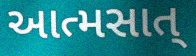
આત્મસાત્